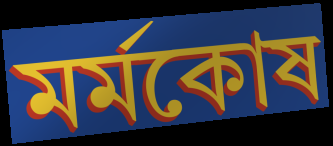
মর্মকোষ